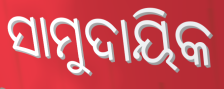
ସାମୁଦାୟିକ